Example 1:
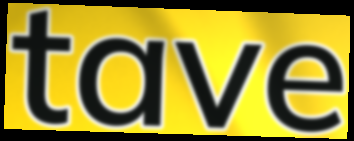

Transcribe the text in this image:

tave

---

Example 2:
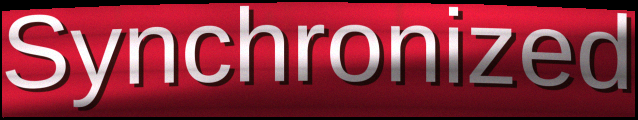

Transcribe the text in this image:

Synchronized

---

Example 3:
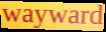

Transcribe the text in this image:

wayward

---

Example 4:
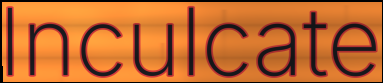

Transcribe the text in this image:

Inculcate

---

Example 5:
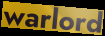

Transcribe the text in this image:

warlord